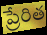
ప్రేరిత